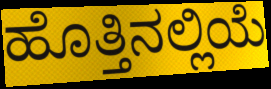
ಹೊತ್ತಿನಲ್ಲಿಯೆ